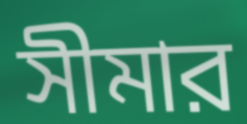
সীমার